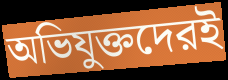
অভিযুক্তদেরই